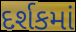
દર્શકમાં